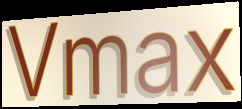
Vmax